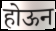
होऊन